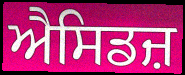
ਐਸਿਡਜ਼